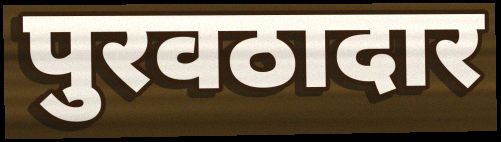
पुरवठादार